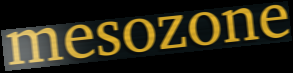
mesozone